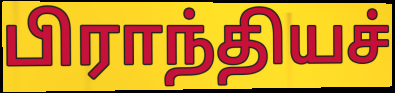
பிராந்தியச்